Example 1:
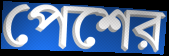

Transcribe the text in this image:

পেশের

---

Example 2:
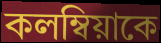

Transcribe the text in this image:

কলম্বিয়াকে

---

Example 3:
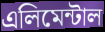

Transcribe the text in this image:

এলিমেন্টাল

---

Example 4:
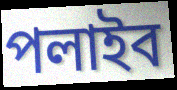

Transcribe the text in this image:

পলাইব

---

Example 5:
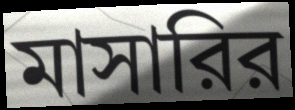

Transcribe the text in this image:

মাসারির